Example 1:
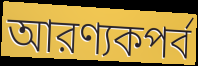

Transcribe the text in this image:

আরণ্যকপর্ব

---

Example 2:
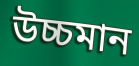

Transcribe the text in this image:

উচ্চমান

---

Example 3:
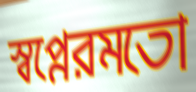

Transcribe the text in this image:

স্বপ্নেরমতো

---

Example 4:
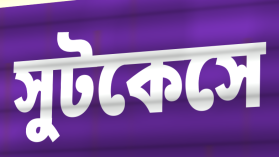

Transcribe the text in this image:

সুটকেসে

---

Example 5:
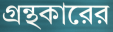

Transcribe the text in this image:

গ্রন্থকারের